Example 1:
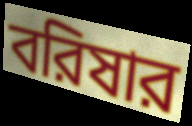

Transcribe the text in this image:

বরিষার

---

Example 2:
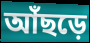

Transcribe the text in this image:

আঁছড়ে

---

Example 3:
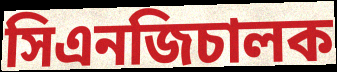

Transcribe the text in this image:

সিএনজিচালক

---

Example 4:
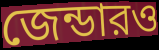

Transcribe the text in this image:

জেন্ডারও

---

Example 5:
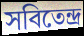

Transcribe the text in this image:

সবিতেন্দ্র